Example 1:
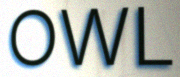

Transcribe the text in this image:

OWL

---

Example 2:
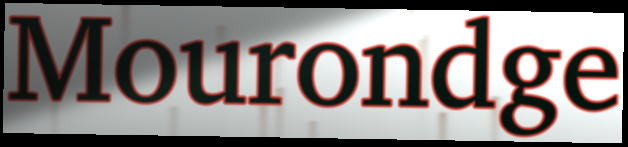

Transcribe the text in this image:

Mourondge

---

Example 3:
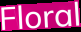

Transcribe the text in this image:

Floral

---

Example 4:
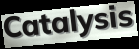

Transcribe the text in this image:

Catalysis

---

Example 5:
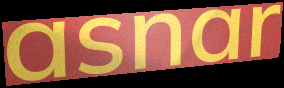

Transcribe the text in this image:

asnar